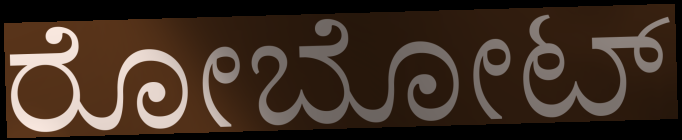
ರೋಬೋಟ್